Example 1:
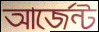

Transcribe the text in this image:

আর্জেন্ট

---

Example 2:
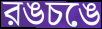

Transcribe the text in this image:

রঙচঙে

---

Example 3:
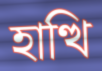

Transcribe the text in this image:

হাত্থি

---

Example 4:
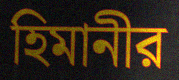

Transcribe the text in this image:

হিমানীর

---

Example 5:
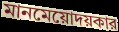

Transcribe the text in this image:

মানমেয়োদয়কার